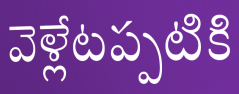
వెళ్లేటప్పటికి